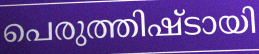
പെരുത്തിഷ്ടായി